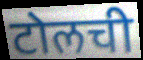
टोलची